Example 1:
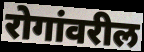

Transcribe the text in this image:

रोगांवरील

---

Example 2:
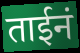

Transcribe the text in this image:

ताईनं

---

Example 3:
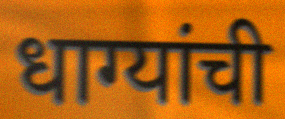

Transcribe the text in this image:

धाग्यांची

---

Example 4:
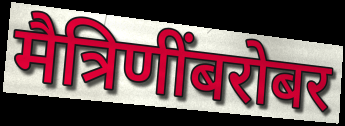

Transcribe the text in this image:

मैत्रिणींबरोबर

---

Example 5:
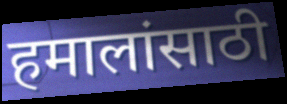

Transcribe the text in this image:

हमालांसाठी